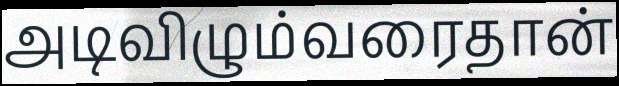
அடிவிழும்வரைதான்